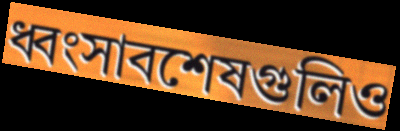
ধ্বংসাবশেষগুলিও